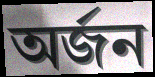
অৰ্জন